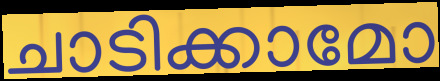
ചാടിക്കാമോ